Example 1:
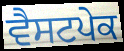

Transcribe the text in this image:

ਵੈਸਟਪੇਕ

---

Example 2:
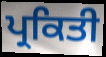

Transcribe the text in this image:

ਪ੍ਰਕਿਤੀ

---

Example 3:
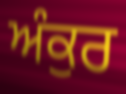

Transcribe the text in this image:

ਅੰਕੁਰ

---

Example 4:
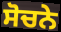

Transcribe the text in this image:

ਸੋਚਨੇ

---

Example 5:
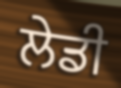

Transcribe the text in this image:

ਲੇਡੀ